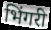
भिंगरी